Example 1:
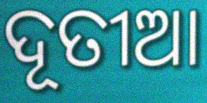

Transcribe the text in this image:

ଦୂତୀଆ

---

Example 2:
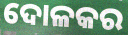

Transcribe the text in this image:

ଦୋଳକର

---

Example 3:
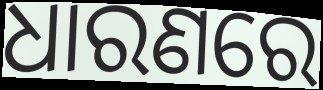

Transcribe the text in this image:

ଧାରଣରେ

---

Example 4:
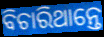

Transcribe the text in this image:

ବିଚାରିଥାନ୍ତେ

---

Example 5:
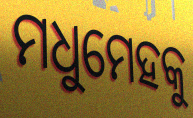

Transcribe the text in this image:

ମଧୁମେହକୁ